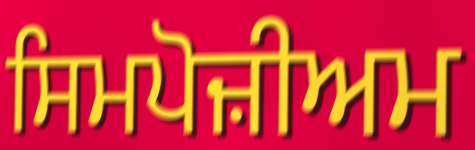
ਸਿਮਪੋਜ਼ੀਅਮ